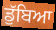
ਡੁੱਬਿਆ